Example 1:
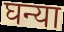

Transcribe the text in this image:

घन्या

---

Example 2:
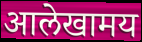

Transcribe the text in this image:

आलेखामय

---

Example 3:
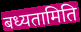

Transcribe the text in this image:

बध्यतामिति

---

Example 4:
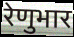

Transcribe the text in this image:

रेणुभार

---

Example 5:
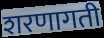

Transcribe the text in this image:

शरणागती